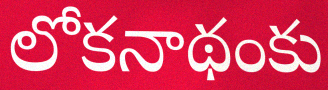
లోకనాథంకు